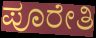
ಪೂರೇತಿ